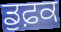
ਡੁਫ਼ਕ